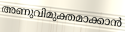
അണുവിമുക്തമാക്കാൻ